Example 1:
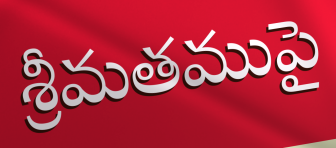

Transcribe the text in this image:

శ్రీమతముపై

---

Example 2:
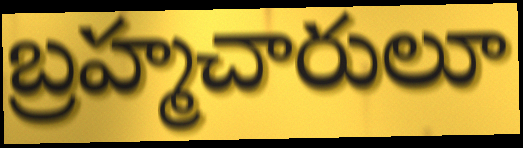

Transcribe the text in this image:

బ్రహ్మచారులూ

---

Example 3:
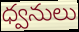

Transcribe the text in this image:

ధ్వనులు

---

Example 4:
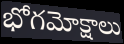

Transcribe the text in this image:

భోగమోక్షాలు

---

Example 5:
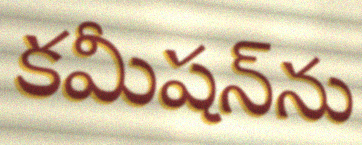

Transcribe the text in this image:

కమీషన్‌ను